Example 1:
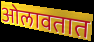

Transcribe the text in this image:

ओलावतात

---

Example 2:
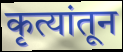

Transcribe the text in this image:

कृत्यांतून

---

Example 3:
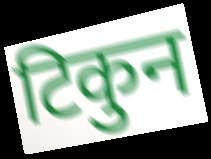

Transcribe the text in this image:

टिकुन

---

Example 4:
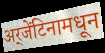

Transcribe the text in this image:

अर्जेंटिनामधून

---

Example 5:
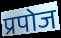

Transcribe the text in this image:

प्रपोज